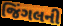
જિંગલની